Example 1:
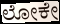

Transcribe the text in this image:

ಲೋಕೇ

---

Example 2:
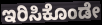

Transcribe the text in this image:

ಇರಿಸಿಕೊಂಡೇ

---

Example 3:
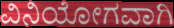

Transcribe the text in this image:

ವಿನಿಯೋಗವಾಗಿ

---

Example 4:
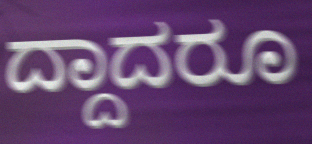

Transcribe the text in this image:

ದ್ದಾದರೂ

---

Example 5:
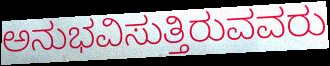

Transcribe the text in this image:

ಅನುಭವಿಸುತ್ತಿರುವವರು